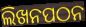
ଲିଖନପଠନ